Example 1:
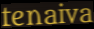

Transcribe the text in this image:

tenaiva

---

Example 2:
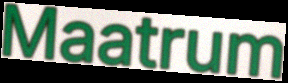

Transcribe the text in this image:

Maatrum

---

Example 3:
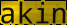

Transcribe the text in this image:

akin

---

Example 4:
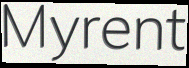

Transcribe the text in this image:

Myrent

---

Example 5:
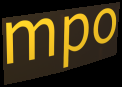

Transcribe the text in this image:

mpo